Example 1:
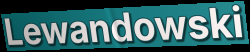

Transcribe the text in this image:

Lewandowski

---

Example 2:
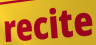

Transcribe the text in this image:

recite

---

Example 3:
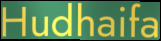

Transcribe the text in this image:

Hudhaifa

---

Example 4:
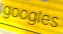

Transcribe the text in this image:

googles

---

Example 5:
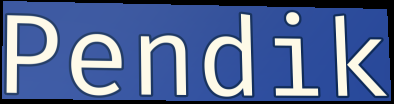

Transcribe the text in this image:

Pendik